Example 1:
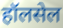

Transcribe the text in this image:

हॉलसेल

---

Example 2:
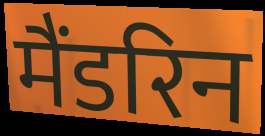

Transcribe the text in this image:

मैंडरिन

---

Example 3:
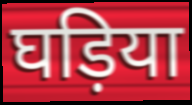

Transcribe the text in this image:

घड़िया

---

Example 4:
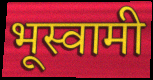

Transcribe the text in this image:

भूस्वामी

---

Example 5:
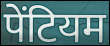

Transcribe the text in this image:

पेंटियम